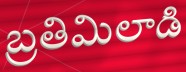
బ్రతిమిలాడి